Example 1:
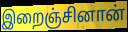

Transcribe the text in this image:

இறைஞ்சினான்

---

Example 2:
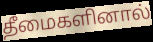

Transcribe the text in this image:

தீமைகளினால்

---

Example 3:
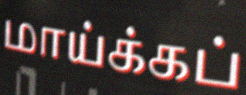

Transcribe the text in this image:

மாய்க்கப்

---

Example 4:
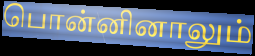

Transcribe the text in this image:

பொன்னினாலும்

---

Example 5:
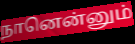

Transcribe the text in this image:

நானென்னும்